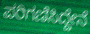
ಪರಿಗಣಿಸಿದ್ದೇನೆ